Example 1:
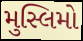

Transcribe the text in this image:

મુસ્લિમો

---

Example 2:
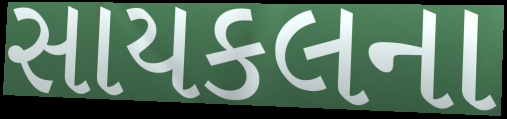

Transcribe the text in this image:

સાયકલના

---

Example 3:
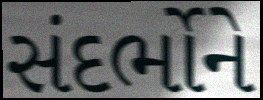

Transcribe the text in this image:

સંદર્ભોને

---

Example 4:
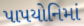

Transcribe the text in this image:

પાપયોનિમાં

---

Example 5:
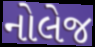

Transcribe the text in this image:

નોલેજ